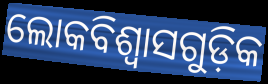
ଲୋକବିଶ୍ୱାସଗୁଡ଼ିକ